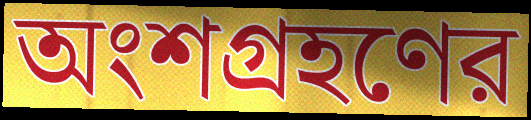
অংশগ্রহণের